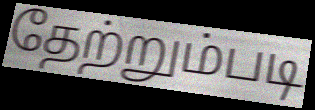
தேற்றும்படி